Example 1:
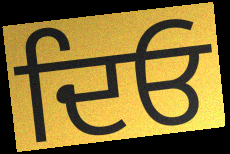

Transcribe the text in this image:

ਦਿਓ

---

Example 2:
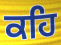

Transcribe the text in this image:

ਕਹਿ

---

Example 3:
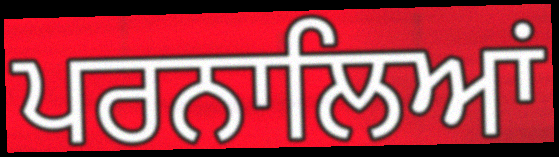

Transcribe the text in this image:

ਪਰਨਾਲਿਆਂ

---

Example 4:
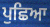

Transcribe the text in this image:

ਪੁਛਿਆ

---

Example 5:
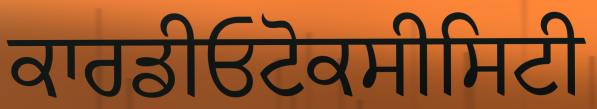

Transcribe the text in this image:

ਕਾਰਡੀਓਟੋਕਸੀਸਿਟੀ